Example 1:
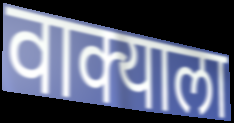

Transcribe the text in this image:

वाक्‍याला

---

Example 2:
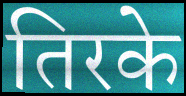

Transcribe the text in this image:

तिरके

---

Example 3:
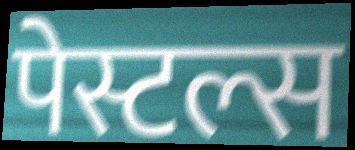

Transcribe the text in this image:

पेस्टल्स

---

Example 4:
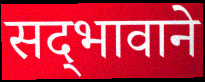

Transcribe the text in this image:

सद्‌भावाने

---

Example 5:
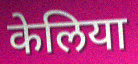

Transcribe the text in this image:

केलिया